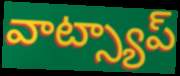
వాట్స్యాప్